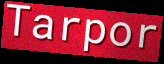
Tarpor